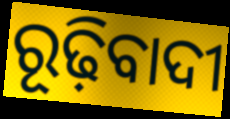
ରୂଢ଼ିବାଦୀ